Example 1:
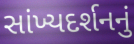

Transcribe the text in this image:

સાંખ્યદર્શનનું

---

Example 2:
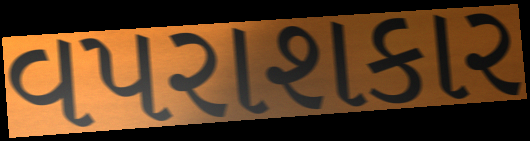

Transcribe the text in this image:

વપરાશકાર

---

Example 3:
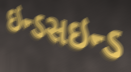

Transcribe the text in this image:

ઇન્ડસઇન્ડ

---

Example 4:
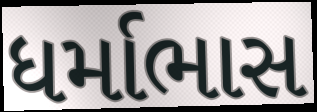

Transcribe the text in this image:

ધર્માભાસ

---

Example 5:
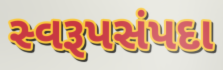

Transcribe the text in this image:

સ્વરૂપસંપદા